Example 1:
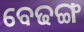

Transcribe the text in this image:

ବେଢଙ୍ଗ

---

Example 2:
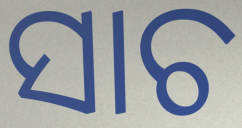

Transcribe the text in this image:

ସାଚ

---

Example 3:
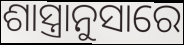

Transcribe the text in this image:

ଶାସ୍ତ୍ରାନୁସାରେ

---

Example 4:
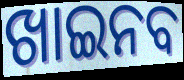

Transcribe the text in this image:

ଖାଇନବ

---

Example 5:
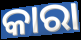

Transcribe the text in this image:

କାରା